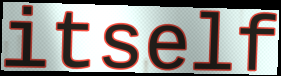
itself